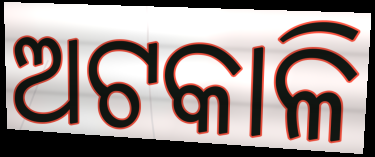
ଅଟକାଳି